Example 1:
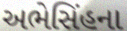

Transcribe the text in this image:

અભેસિંહના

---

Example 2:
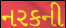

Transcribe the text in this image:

નરકની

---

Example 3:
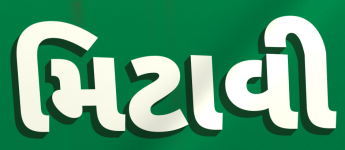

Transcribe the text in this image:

મિટાવી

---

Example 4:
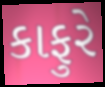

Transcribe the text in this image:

કાફુરે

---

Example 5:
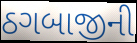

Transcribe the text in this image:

ઠગબાજીની